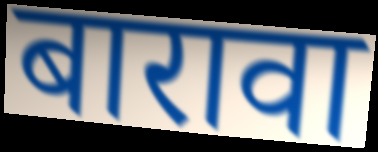
बारावा